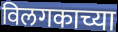
विलगकाच्या